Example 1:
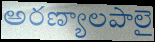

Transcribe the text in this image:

అరణ్యాలపాలై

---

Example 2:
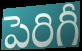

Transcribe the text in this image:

పెరిగీ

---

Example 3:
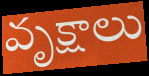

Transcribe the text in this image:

వృక్షాలు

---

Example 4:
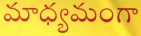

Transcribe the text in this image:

మాధ్యమంగా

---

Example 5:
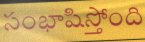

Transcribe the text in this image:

సంభాషిస్తోంది